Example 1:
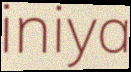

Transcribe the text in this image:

iniya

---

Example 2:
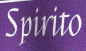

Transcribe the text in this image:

Spirito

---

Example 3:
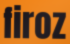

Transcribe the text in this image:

firoz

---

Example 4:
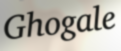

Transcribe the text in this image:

Ghogale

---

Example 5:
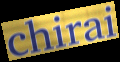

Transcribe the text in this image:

chirai